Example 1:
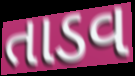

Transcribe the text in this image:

તાડવ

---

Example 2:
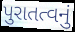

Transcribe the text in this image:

પુરાતત્વનું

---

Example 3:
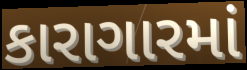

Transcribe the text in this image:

કારાગારમાં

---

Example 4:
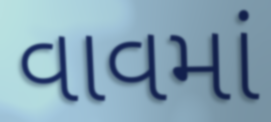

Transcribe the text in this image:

વાવમાં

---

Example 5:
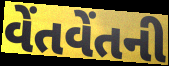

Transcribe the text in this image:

વેંતવેંતની